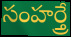
సంహర్త్రే